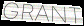
GRANT